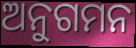
ଅନୁଗମନ